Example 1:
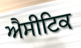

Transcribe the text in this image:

ਐਸੀਟਿਕ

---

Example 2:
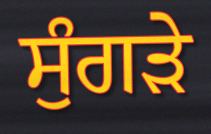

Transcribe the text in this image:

ਸੁੰਗੜੇ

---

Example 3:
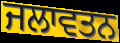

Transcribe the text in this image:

ਜਲਾਵਤਨ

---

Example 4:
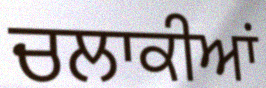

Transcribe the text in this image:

ਚਲਾਕੀਆਂ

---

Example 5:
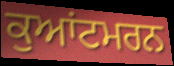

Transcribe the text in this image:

ਕੁਆਂਟਮਰਨ